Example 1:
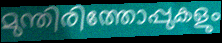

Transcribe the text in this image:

മുന്തിരിത്തോപ്പുകളും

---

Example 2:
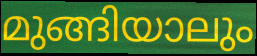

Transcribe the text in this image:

മുങ്ങിയാലും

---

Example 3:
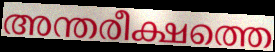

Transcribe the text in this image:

അന്തരീക്ഷത്തെ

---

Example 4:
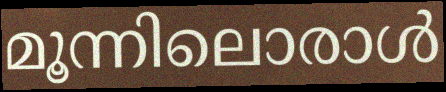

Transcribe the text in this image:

മൂന്നിലൊരാൾ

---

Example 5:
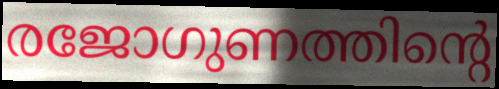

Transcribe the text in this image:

രജോഗുണത്തിന്റെ